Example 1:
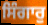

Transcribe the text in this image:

ਸਿੰਗਾਰੁ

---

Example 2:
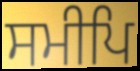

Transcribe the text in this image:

ਸਮੀਪਿ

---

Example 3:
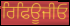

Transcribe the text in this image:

ਰਿਫਿਊਜੀਓ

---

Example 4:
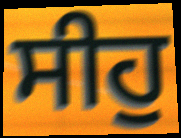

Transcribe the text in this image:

ਸੀਹੁ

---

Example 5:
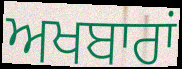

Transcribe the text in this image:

ਅਖਬਾਰਾਂ